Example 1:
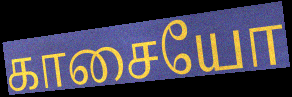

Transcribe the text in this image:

காசையோ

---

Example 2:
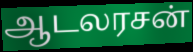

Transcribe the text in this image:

ஆடலரசன்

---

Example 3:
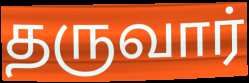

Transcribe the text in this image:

தருவார்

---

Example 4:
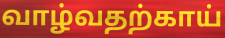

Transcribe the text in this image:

வாழ்வதற்காய்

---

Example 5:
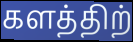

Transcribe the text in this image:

களத்திற்